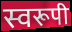
स्वरूपी